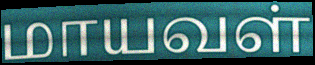
மாயவள்